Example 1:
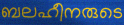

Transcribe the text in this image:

ബലഹീനരുടെ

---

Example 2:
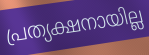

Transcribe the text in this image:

പ്രത്യക്ഷനായില്ല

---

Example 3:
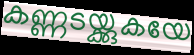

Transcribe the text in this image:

കണ്ണടയ്ക്കുകയേ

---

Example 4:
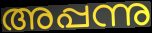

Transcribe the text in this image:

അപ്പന്നു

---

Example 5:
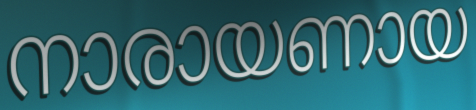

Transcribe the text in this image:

നാരായണായ